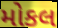
મોકલ